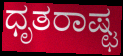
ಧೃತರಾಷ್ಟ